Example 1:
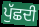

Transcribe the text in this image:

ਪੁੱਛਦੀ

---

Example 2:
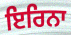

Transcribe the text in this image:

ਇਰਿਨਾ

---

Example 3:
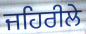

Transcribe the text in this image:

ਜਹਿਰੀਲੇ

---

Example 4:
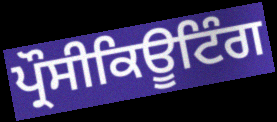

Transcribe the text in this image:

ਪ੍ਰੌਸੀਕਿਊਟਿੰਗ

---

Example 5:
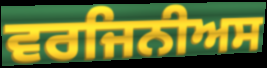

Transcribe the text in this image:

ਵਰਜਿਨੀਅਸ